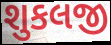
શુકલજી